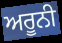
ਅਰੂਨੀ